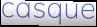
casque